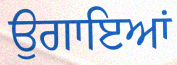
ਉਗਾਇਆਂ